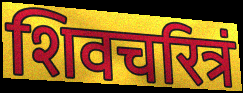
शिवचरित्रं